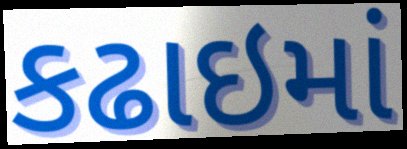
કઢાઇમાં